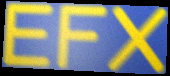
EFX